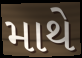
માથે